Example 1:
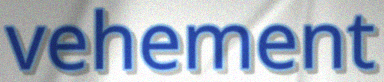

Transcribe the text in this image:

vehement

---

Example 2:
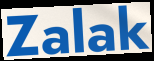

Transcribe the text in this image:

Zalak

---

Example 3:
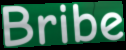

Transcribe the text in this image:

Bribe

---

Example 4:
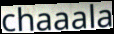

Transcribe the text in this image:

chaaala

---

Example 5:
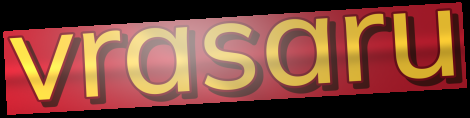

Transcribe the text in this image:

vrasaru